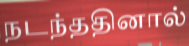
நடந்ததினால்